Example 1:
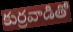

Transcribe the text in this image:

కుర్రవాడితో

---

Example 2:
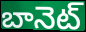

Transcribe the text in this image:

బానెట్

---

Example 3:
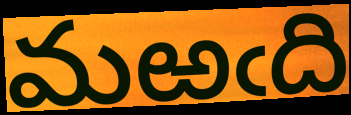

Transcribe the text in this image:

మఱఁది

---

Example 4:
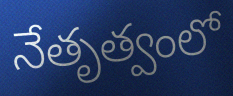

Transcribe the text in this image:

నేతృత్వంలో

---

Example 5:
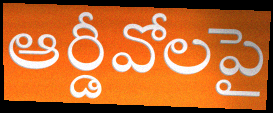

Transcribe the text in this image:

ఆర్డీవోలపై